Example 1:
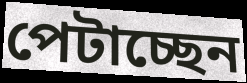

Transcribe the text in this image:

পেটাচ্ছেন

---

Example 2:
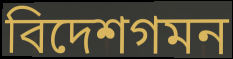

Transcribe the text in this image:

বিদেশগমন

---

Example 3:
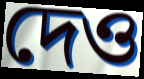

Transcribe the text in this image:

দেও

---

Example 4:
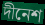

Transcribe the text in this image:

দীনেশ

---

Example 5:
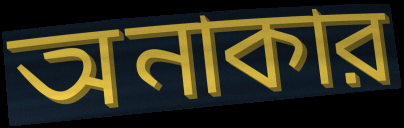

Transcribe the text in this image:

অনাকার